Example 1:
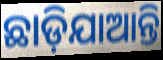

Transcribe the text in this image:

ଛାଡ଼ିଯାଆନ୍ତି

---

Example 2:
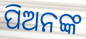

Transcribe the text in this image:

ପିଅନଙ୍କ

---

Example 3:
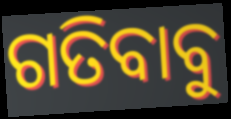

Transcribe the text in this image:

ଗତିବାବୁ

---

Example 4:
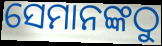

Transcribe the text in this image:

ସେମାନଙ୍କଠୁ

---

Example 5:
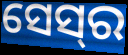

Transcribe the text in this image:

ସେସ୍‌ର